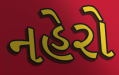
નહેરો